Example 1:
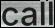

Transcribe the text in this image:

call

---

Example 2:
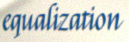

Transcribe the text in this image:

equalization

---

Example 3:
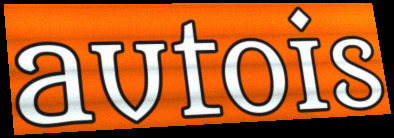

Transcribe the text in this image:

autois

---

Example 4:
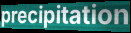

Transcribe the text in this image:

precipitation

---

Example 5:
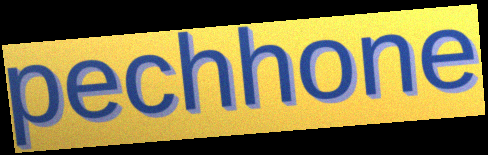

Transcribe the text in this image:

pechhone